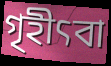
গৃহীৎবা